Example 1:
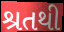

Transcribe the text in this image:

શ્રતથી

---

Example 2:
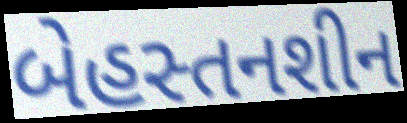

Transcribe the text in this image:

બેહસ્તનશીન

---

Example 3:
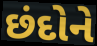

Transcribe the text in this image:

છંદોને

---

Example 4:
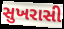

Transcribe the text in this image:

સુખરાસી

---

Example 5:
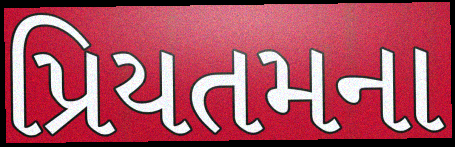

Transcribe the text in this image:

પ્રિયતમના